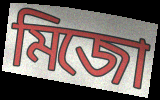
মিজো